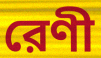
রেণী